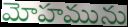
మోహమును